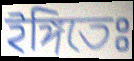
ইঙ্গিতেঃ